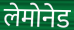
लेमोनेड